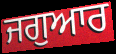
ਜਗੁਆਰ